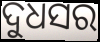
ଦୁଧସର